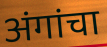
अंगांचा